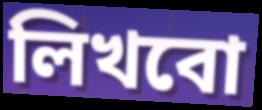
লিখবো